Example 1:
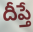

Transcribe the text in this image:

దీప్తే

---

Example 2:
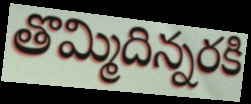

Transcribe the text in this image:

తొమ్మిదిన్నరకి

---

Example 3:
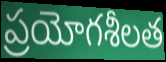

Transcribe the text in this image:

ప్రయోగశీలత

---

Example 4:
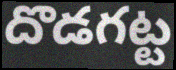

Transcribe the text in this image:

దొడగట్ట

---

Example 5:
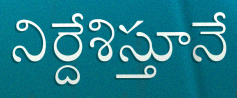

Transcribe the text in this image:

నిర్దేశిస్తూనే